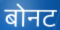
बोनट